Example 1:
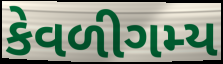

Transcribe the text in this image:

કેવળીગમ્ય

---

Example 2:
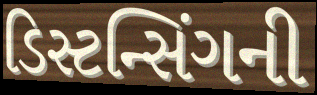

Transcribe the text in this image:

ડિસ્ટન્સિંગની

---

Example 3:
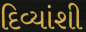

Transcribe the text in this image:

દિવ્યાંશી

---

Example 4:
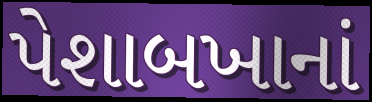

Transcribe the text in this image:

પેશાબખાનાં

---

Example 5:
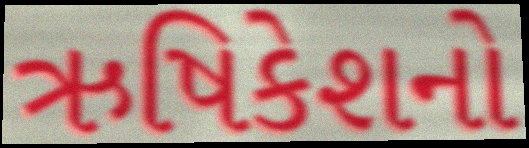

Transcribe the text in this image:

ઋષિકેશનો